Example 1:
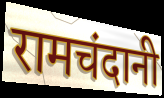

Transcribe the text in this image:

रामचंदानी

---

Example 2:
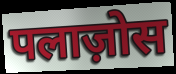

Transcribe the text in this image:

पलाज़ोस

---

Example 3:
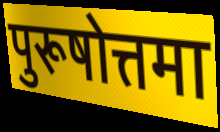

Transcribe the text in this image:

पुरूषोत्तमा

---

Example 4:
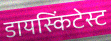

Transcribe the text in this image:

डायस्किंटेस्ट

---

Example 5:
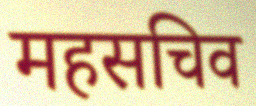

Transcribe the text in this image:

महसचिव